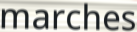
marches